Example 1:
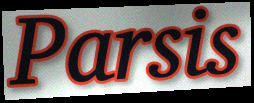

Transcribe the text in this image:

Parsis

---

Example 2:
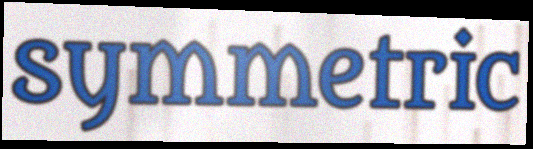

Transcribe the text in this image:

symmetric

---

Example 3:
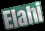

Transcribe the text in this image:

Elahi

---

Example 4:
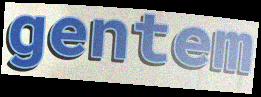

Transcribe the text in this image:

gentem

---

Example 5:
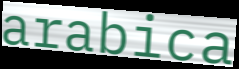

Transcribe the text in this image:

arabica